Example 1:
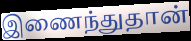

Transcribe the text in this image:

இணைந்துதான்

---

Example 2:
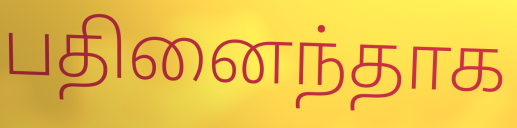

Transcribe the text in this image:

பதினைந்தாக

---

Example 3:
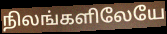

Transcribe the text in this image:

நிலங்களிலேயே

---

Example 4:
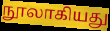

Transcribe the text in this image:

நூலாகியது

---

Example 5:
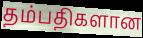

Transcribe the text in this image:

தம்பதிகளான